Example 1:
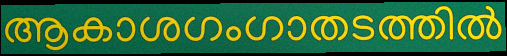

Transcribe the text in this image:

ആകാശഗംഗാതടത്തിൽ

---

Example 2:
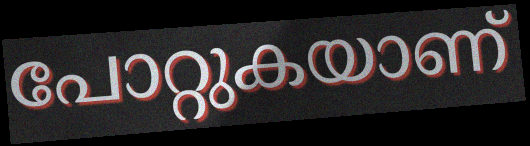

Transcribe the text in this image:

പോറ്റുകയാണ്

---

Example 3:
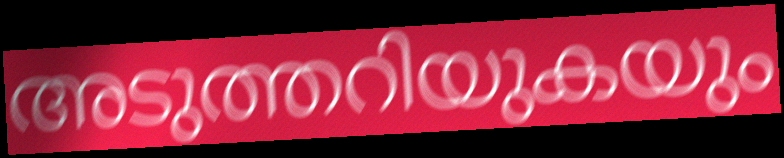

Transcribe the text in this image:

അടുത്തറിയുകയും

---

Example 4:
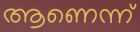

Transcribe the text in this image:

ആണെന്ന്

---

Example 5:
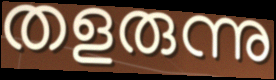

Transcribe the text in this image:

തളരുന്നു